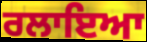
ਰਲਾਇਆ